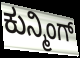
ಕುನ್ಮಿಂಗ್